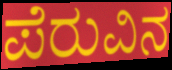
ಪೆರುವಿನ